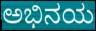
ಅಭಿನಯ